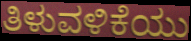
ತಿಳುವಳಿಕೆಯು